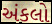
અંકલો